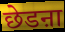
छेडऩा